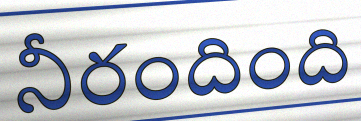
నీరందింది